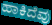
ಹಾಕಿದೆವು